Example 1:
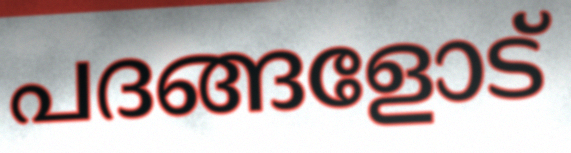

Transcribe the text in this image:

പദങ്ങളോട്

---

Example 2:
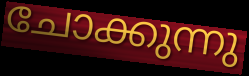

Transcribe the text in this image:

ചോക്കുന്നു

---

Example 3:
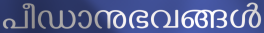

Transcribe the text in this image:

പീഡാനുഭവങ്ങൾ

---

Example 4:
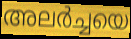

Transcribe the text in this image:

അലർച്ചയെ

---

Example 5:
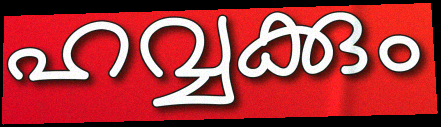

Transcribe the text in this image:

ഹവ്വക്കും